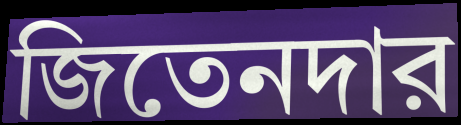
জিতেনদার